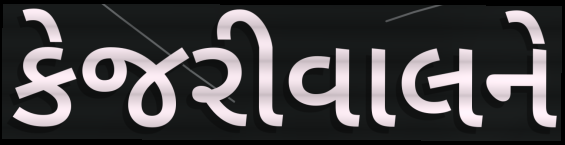
કેજરીવાલને